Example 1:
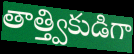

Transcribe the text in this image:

తాత్త్వికుడిగా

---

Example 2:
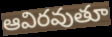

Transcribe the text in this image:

ఆవిరవుతూ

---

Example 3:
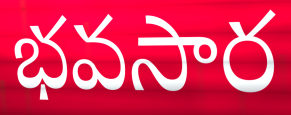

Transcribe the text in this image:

భవసార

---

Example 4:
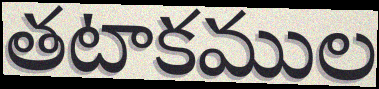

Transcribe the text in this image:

తటాకముల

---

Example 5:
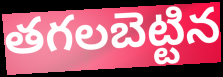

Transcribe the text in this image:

తగలబెట్టిన